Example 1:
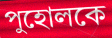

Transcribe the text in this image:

পুহোলকে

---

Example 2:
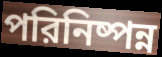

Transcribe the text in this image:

পরিনিষ্পন্ন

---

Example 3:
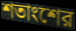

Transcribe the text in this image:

শতাংশের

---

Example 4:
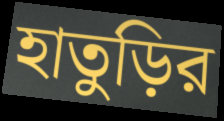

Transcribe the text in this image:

হাতুড়ির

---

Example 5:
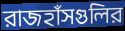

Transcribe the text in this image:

রাজহাঁসগুলির